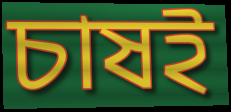
চাষই